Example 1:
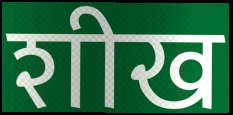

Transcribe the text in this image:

शीख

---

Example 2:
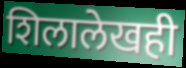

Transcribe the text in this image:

शिलालेखही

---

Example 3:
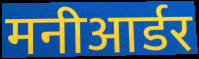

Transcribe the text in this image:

मनीआर्डर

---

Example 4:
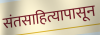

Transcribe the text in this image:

संतसाहित्यापासून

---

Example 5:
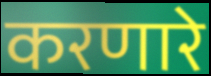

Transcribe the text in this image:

करणारे